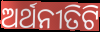
ଅର୍ଥନୀତିଟି